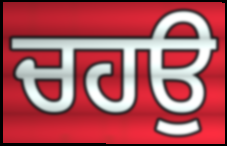
ਚਹਉ